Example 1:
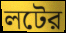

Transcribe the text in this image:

লটের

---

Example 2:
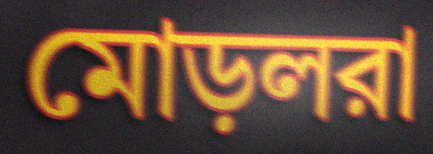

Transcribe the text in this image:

মোড়লরা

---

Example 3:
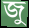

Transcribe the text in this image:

জু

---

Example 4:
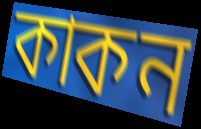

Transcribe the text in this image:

কাকন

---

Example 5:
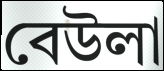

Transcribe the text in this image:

বেউলা